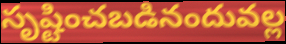
సృష్టించబడినందువల్ల